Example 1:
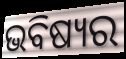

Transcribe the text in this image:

ଭବିଷ୍ୟର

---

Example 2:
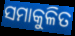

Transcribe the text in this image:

ସମାକୁଳିତ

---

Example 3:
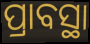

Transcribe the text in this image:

ପ୍ରାବସ୍ଥା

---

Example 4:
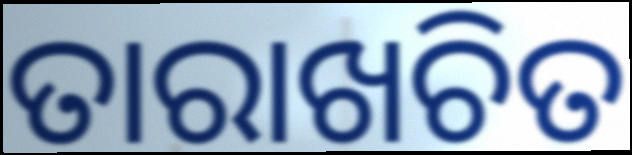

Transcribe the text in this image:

ତାରାଖଚିତ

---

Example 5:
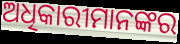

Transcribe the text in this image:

ଅଧିକାରୀମାନଙ୍କର